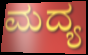
ಮದ್ಯ